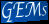
GEMs